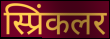
स्प्रिंकलर